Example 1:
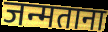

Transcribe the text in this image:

जन्मताना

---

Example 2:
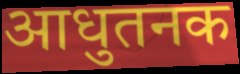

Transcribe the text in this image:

आधुतनक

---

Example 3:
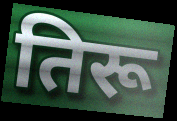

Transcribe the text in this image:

तिरू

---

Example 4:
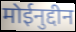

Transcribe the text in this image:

मोईनुद्दीन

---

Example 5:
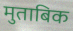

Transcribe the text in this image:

मुताबिक